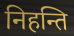
निहन्ति